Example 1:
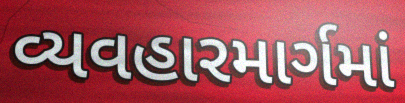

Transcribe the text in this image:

વ્યવહારમાર્ગમાં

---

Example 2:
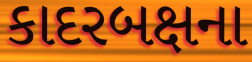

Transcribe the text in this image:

કાદરબક્ષના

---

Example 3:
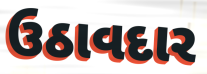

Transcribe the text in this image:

ઉઠાવદાર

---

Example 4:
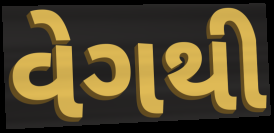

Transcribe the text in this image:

વેગથી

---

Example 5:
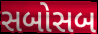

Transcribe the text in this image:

સબોસબ